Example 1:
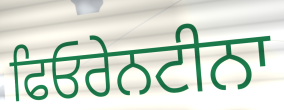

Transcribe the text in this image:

ਫਿਓਰੇਨਟੀਨਾ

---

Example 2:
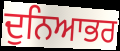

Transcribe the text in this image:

ਦੁਨਿਆਭਰ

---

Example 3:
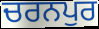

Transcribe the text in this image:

ਚਰਨਪੁਰ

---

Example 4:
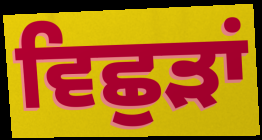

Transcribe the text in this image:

ਵਿਛੁੜਾਂ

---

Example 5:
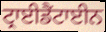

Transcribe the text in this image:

ਟ੍ਰਾਈਡੈਂਟਾਈਨ